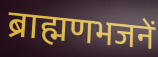
ब्राह्मणभजनें